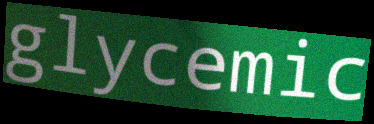
glycemic